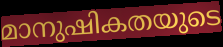
മാനുഷികതയുടെ